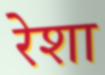
रेशा